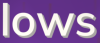
lows